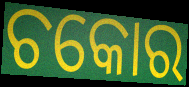
ଚକୋର